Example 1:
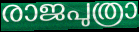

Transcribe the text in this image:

രാജപുത്രാ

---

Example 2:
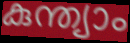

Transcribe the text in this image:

കുന്ത്യാം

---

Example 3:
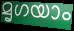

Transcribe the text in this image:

മൃഗയാം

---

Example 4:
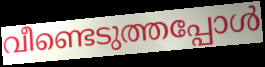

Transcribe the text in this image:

വീണ്ടെടുത്തപ്പോൾ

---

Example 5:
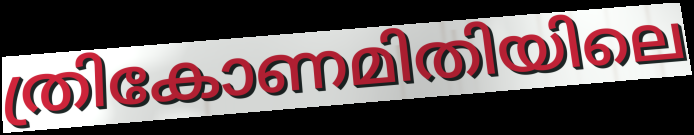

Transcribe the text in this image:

ത്രികോണമിതിയിലെ